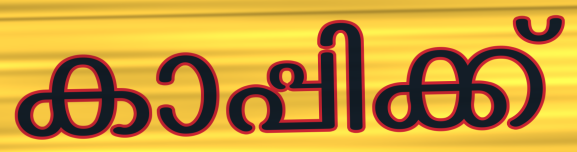
കാപ്പിക്ക്